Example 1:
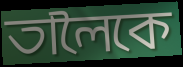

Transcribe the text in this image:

তালৈকে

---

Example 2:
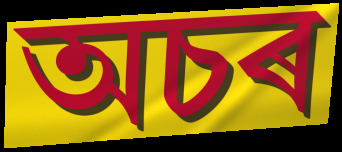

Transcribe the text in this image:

অচৰ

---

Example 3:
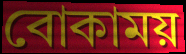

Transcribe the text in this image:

বোকাময়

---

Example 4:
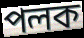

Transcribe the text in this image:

পলক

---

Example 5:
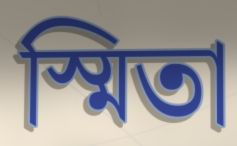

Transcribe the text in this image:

স্মিতা